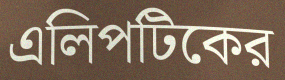
এলিপটিকের